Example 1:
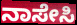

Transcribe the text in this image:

ನಾಸೇಸಿ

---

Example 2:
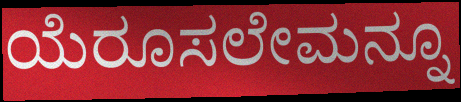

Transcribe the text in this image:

ಯೆರೂಸಲೇಮನ್ನೂ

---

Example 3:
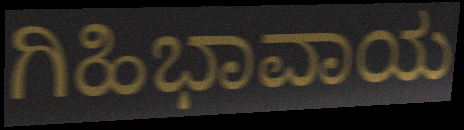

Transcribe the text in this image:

ಗಿಹಿಭಾವಾಯ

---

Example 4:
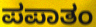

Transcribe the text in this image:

ಪಪಾತಂ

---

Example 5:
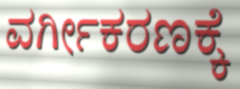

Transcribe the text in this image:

ವರ್ಗೀಕರಣಕ್ಕೆ